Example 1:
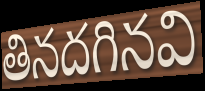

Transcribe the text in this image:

తినదగినవి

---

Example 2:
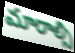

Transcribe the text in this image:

మారాల్సి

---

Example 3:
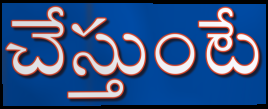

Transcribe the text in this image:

చేస్తుంటే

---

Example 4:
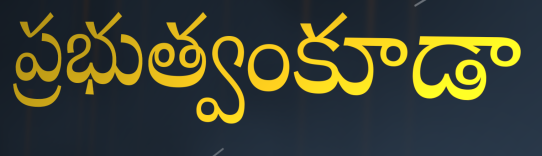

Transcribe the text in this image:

ప్రభుత్వంకూడా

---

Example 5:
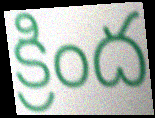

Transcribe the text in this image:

క్రింద